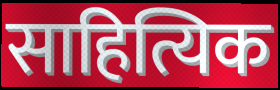
साहित्यिक